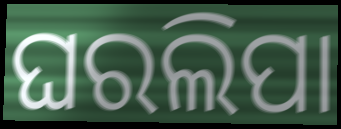
ଘରଲିପା